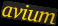
avium